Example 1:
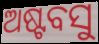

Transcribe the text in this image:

ଅଷ୍ଟବସୁ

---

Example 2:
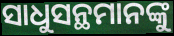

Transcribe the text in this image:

ସାଧୁସନ୍ଥମାନଙ୍କୁ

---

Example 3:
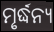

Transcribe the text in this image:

ମୃର୍ଦ୍ଧନ୍ୟ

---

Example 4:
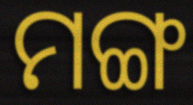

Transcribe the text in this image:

ମଙ୍ଗ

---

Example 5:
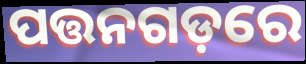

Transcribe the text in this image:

ପତ୍ତନଗଡ଼ରେ